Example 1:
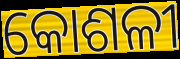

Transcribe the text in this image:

କୋଶଳୀ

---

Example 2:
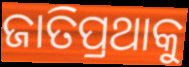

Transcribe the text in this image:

ଜାତିପ୍ରଥାକୁ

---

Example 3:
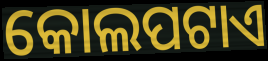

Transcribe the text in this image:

କୋଲପଟାଏ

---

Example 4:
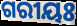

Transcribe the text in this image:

ଗରୀୟଃ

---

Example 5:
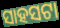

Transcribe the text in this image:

ସାହସଟା